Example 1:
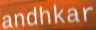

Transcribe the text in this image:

andhkar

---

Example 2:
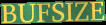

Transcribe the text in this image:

BUFSIZE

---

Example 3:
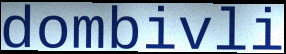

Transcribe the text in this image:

dombivli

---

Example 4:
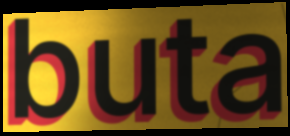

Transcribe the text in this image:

buta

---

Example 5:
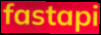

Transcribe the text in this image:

fastapi